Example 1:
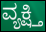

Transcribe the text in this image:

ವ್ಯಕ್ಷ್ತಿ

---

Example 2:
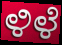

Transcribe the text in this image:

ಳಿಳೆ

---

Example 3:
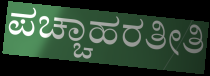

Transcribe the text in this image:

ಪಚ್ಚಾಹರತೀತಿ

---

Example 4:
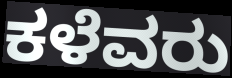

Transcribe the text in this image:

ಕಳೆವರು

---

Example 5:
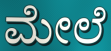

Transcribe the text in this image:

ಮೇಲೆ